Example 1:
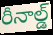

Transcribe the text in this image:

రీనాల్డ్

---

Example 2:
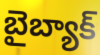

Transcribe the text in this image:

బైబ్యాక్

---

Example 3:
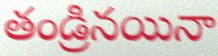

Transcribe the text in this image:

తండ్రినయినా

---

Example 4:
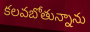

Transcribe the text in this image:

కలవబోతున్నాను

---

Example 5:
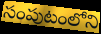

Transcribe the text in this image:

సంపుటంలోని